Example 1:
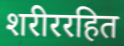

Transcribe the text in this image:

शरीररहित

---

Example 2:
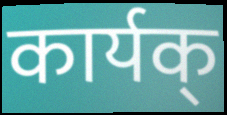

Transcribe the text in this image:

कार्यक्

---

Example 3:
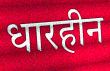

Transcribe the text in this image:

धारहीन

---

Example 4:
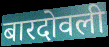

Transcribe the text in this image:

बारदोवली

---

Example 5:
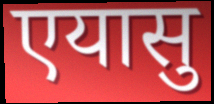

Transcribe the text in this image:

एयासु